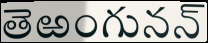
తెఱంగునన్